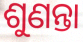
ଶୁଣନ୍ତା